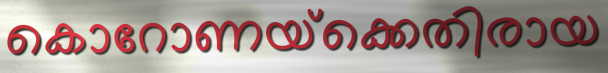
കൊറോണയ്‌ക്കെതിരായ